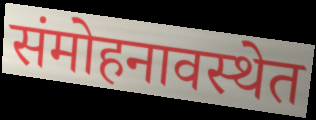
संमोहनावस्थेत